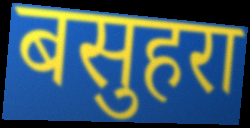
बसुहरा